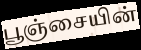
பூஞ்சையின்